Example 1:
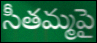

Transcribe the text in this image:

సీతమ్మపై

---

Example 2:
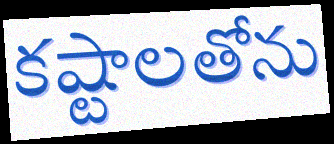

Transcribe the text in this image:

కష్టాలతోను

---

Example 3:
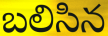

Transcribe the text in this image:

బలిసిన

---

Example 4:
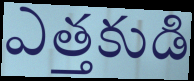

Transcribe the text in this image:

ఎత్తకుడి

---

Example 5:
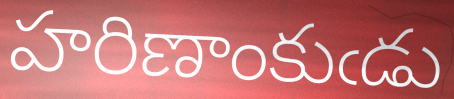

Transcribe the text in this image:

హరిణాంకుఁడు